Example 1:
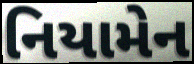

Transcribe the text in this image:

નિયામેન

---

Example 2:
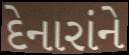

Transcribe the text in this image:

દેનારાંને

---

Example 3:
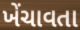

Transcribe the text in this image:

ખેંચાવતા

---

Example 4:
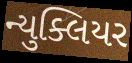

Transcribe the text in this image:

ન્યુક્લિયર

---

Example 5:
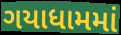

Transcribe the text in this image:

ગયાધામમાં